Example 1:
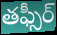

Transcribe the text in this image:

తఫ్సీర్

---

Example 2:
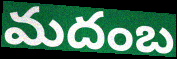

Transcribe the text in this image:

మదంబ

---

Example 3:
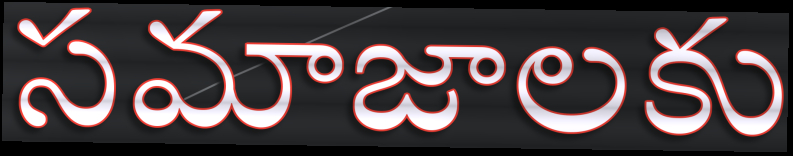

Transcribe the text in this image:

సమాజాలకు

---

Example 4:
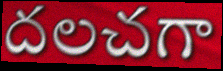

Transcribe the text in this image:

దలచగా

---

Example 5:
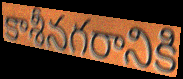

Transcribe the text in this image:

కాశీనగరానికి